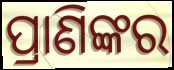
ପ୍ରାଣିଙ୍କର